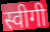
स्वीगी